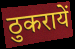
ठुकरायें